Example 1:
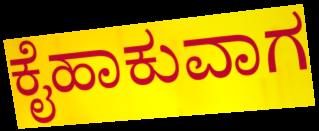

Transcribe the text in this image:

ಕೈಹಾಕುವಾಗ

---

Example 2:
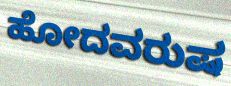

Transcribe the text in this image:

ಹೋದವರುಷ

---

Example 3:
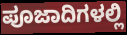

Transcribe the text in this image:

ಪೂಜಾದಿಗಳಲ್ಲಿ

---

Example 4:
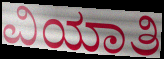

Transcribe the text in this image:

ವಿಯಾತಿ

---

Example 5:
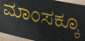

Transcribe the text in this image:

ಮಾಂಸಕ್ಕೂ